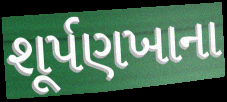
શૂર્પણખાના